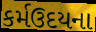
કર્મઉદયના